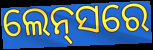
ଲେନ୍‌ସରେ